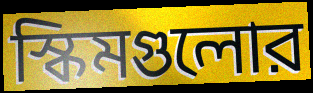
স্কিমগুলোর